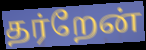
தர்றேன்